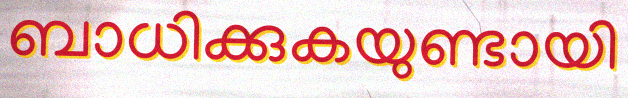
ബാധിക്കുകയുണ്ടായി